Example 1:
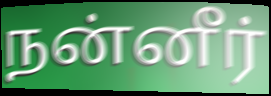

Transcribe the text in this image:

நன்னீர்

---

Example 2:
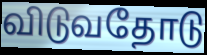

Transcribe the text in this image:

விடுவதோடு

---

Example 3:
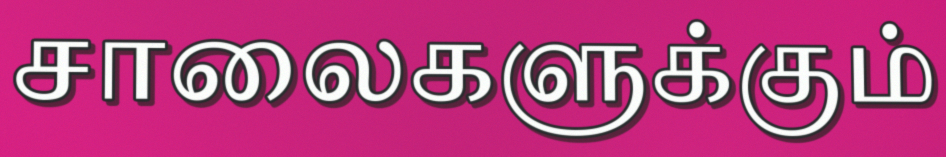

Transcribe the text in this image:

சாலைகளுக்கும்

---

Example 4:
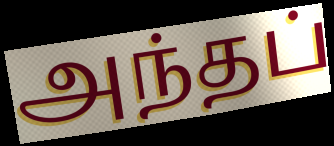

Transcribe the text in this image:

அந்தப்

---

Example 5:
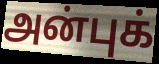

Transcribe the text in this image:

அன்புக்